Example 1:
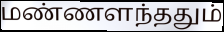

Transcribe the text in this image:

மண்ணளந்ததும்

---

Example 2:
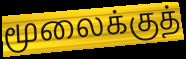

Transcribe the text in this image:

மூலைக்குத்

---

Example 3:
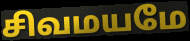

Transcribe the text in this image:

சிவமயமே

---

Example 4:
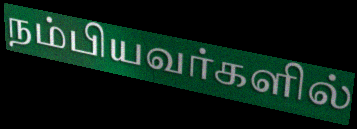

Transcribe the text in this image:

நம்பியவர்களில்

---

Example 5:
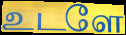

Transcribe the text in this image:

உடளே